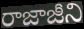
రాజాజీని